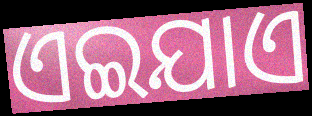
ଏଇଯାଏ